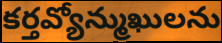
కర్తవ్యోన్ముఖులను